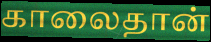
காலைதான்